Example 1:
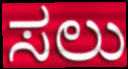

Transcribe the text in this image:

ಸಲು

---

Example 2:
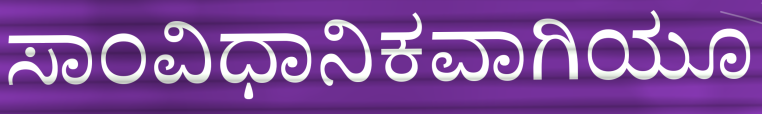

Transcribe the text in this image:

ಸಾಂವಿಧಾನಿಕವಾಗಿಯೂ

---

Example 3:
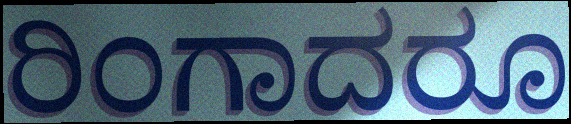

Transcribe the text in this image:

ರಿಂಗಾದರೂ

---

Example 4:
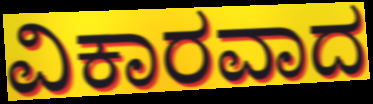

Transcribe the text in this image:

ವಿಕಾರವಾದ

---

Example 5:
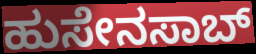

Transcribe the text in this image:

ಹುಸೇನಸಾಬ್